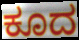
ಕೂದ